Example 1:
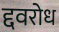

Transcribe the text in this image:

द्दवरोध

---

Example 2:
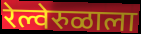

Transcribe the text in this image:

रेल्वेरुळाला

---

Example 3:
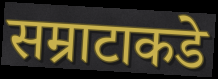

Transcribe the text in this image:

सम्राटाकडे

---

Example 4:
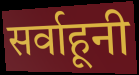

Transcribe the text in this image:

सर्वाहूनी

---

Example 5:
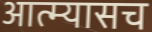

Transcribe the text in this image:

आत्म्यासच